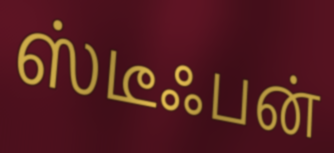
ஸ்டீஃபன்